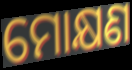
ମୋକ୍ଷଣ